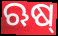
ଋଷ୍